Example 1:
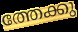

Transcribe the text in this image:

ത്തേക്കു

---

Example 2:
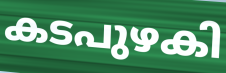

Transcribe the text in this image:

കടപുഴകി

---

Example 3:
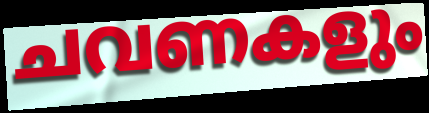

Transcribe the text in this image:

ചവണകളും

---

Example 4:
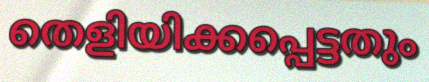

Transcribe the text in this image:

തെളിയിക്കപ്പെട്ടതും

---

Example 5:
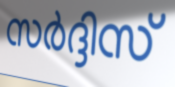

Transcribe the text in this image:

സർദ്ദിസ്